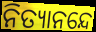
ନିତ୍ୟାନନ୍ଦେ